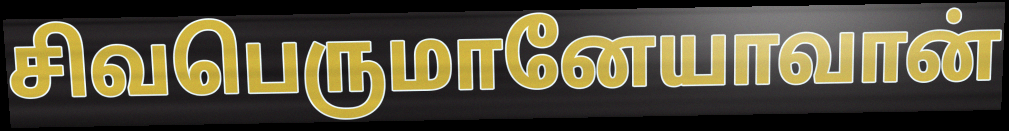
சிவபெருமானேயாவான்